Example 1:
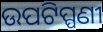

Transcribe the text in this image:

ଉପଟିପ୍ପଣୀ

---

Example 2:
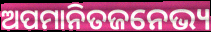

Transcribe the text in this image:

ଅପମାନିତଜନେଭ୍ୟ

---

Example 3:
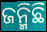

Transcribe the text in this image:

ଜନ୍ମିଛି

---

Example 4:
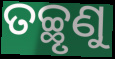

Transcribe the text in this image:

ତଚ୍ଛୃଣୁ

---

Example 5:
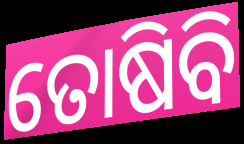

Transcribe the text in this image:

ତୋଷିବି